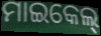
ମାଇକେଲ୍